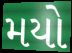
મયો